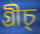
গ্ৰীচ্